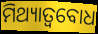
ମିଥ୍ୟାତ୍ୱବୋଧ